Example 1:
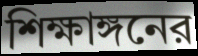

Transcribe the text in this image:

শিক্ষাঙ্গনের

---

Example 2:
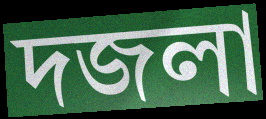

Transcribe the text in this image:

দজলা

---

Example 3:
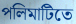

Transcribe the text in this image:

পলিমাটিতে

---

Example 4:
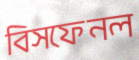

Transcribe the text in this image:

বিসফেনল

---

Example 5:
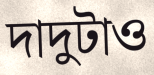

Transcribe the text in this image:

দাদুটাও